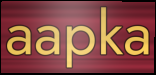
aapka